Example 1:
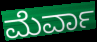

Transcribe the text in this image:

ಮೆರ್ವಾ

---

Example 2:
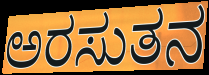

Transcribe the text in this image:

ಅರಸುತನ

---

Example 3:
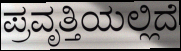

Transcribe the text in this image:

ಪ್ರವೃತ್ತಿಯಲ್ಲಿದೆ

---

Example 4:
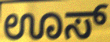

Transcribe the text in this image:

ಊಸ್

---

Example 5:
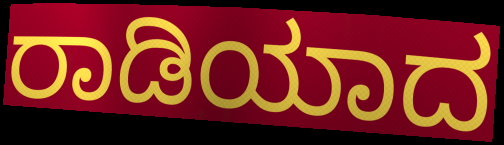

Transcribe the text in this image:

ರಾಡಿಯಾದ